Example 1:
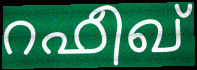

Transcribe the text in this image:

റഫീഖ്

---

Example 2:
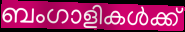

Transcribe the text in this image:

ബംഗാളികൾക്ക്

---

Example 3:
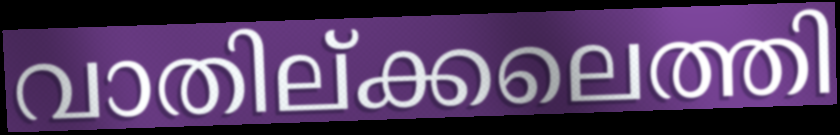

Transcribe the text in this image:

വാതില്ക്കലെത്തി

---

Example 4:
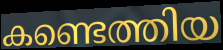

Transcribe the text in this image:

കണ്ടെത്തിയ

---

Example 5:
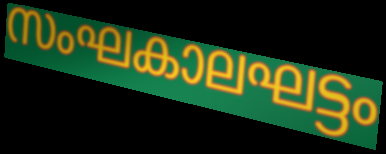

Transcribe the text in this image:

സംഘകാലഘട്ടം